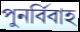
পুনৰ্বিবাহ